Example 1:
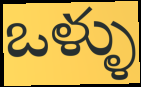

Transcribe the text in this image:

ఒళ్ళు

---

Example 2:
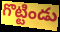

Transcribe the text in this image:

గొట్టిండు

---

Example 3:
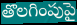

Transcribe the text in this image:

తొలగింపుపై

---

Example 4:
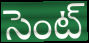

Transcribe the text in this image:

సెంట్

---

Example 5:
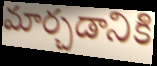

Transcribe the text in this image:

మార్చడానికి